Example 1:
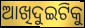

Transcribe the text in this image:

ଆଖିଦୁଇଟିକୁ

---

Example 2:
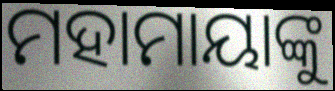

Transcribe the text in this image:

ମହାମାୟାଙ୍କୁ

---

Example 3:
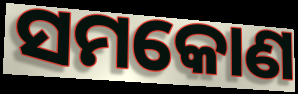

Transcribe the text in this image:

ସମକୋଣ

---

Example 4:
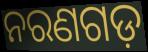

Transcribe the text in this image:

ନରଣଗଡ଼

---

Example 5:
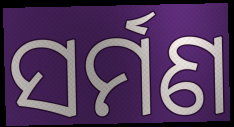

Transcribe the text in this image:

ସର୍ମଣ